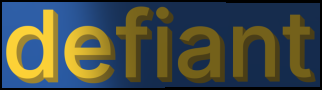
defiant